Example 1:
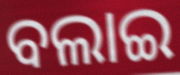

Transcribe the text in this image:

ବଲାଇ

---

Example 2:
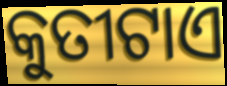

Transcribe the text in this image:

କୁତୀଟାଏ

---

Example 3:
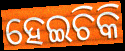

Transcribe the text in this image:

ହେଇଚିକି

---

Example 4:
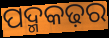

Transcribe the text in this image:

ପଦ୍ମକଢ଼ର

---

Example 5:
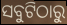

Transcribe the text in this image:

ସବୁଟିଠାରୁ